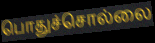
பொதுச்சொல்லை